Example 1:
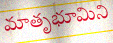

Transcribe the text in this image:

మాతృభూమిని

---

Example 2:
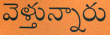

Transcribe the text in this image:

వెళ్తున్నారు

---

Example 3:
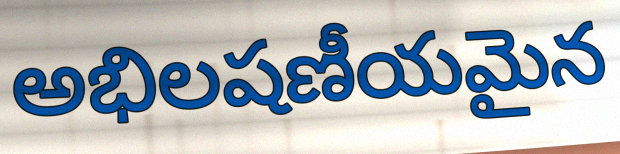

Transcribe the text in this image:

అభిలషణీయమైన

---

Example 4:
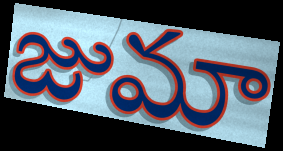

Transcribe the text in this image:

జుమా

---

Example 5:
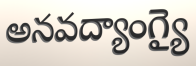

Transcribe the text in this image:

అనవద్యాంగ్యై